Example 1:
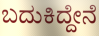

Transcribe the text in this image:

ಬದುಕಿದ್ದೇನೆ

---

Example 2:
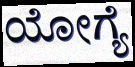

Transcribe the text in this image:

ಯೋಗ್ಯೆ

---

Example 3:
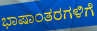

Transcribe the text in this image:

ಭಾಷಾಂತರಗಳಿಗೆ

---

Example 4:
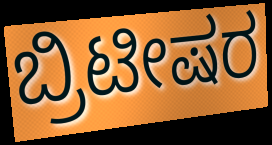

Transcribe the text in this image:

ಬ್ರಿಟೀಷರ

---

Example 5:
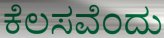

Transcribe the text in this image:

ಕೆಲಸವೆಂದು